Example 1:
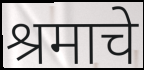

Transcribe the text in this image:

श्रमाचे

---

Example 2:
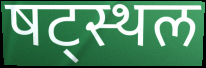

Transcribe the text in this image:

षट्स्थल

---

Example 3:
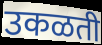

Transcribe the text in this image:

उकळती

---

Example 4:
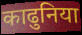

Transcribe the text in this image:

काढुनिया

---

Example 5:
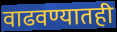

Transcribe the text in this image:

वाढवण्यातही